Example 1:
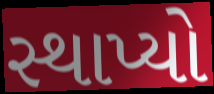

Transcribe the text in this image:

સ્થાપ્યો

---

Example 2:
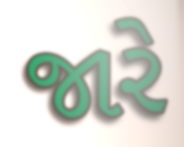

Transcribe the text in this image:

જારે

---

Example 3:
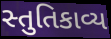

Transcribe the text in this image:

સ્તુતિકાવ્ય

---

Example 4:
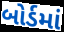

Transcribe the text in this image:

બોર્ડમાં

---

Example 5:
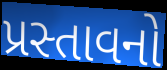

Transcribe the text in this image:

પ્રસ્તાવનો